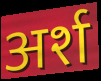
अर्श